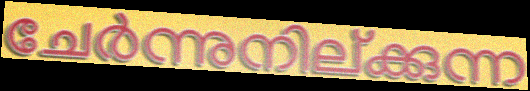
ചേർന്നുനില്ക്കുന്ന